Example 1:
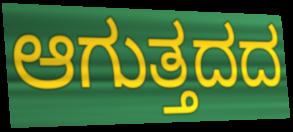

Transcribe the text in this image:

ಆಗುತ್ತದದ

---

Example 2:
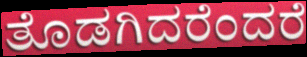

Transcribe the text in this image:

ತೊಡಗಿದರೆಂದರೆ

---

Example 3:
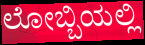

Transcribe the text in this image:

ಲೋಬ್ಬಿಯಲ್ಲಿ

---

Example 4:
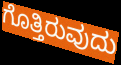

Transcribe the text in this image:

ಗೊತ್ತಿರುವುದು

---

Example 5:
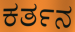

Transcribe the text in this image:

ಕರ್ತನ